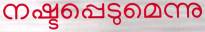
നഷ്ടപ്പെടുമെന്നു